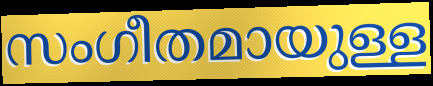
സംഗീതമായുള്ള